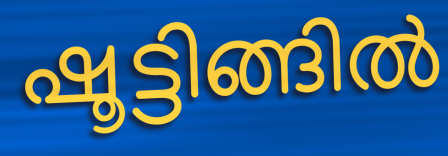
ഷൂട്ടിങ്ങിൽ